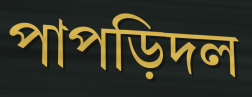
পাপড়িদল